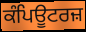
ਕੰਪਿਊਟਰਜ਼